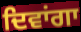
ਦਿਵਾਂਗਾ